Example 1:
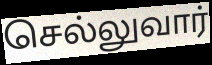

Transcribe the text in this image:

செல்லுவார்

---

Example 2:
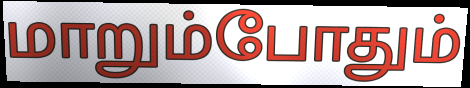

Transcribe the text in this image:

மாறும்போதும்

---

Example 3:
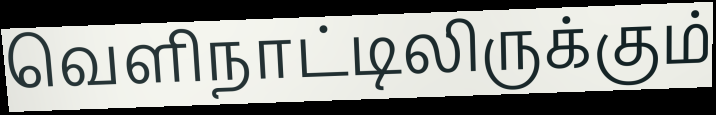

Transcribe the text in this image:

வெளிநாட்டிலிருக்கும்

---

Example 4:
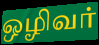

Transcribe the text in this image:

ஒழிவர்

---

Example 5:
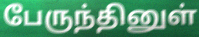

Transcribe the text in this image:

பேருந்தினுள்